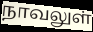
நாவலுள்